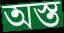
অস্ত